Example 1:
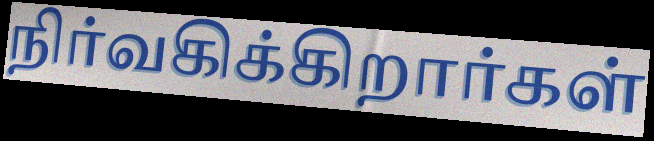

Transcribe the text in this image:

நிர்வகிக்கிறார்கள்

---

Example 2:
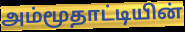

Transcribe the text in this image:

அம்மூதாட்டியின்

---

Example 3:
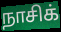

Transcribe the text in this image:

நாசிக்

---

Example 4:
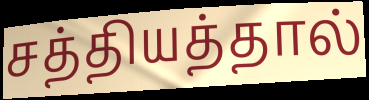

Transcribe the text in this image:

சத்தியத்தால்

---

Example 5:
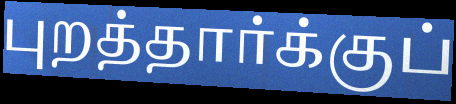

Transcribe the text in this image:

புறத்தார்க்குப்